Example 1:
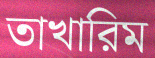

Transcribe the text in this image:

তাখারিম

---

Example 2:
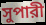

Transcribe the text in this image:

সুপারী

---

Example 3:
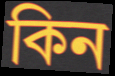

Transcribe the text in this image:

কিন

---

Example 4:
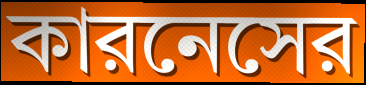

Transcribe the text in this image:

কারনেসের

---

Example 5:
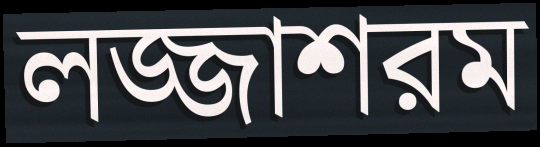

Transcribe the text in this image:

লজ্জাশরম